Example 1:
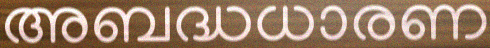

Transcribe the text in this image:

അബദ്ധധാരണ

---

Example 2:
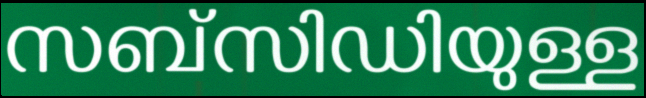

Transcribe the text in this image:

സബ്സിഡിയുള്ള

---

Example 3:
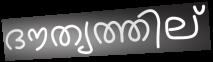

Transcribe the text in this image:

ദൗത്യത്തില്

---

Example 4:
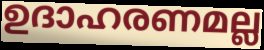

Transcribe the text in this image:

ഉദാഹരണമല്ല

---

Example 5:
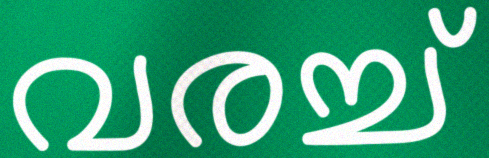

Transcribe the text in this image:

വരച്ച്